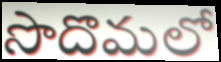
సొదొమలో